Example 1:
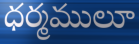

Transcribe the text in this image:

ధర్మములూ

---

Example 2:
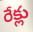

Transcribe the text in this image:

రేక్లు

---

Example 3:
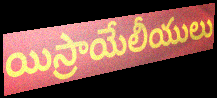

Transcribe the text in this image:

యిస్రాయేలీయులు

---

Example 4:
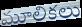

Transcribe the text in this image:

మూలికలు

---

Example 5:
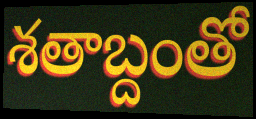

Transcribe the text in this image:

శతాబ్దంతో